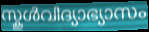
സ്കൂൾവിദ്യാഭ്യാസം